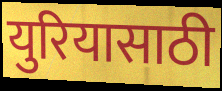
युरियासाठी